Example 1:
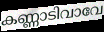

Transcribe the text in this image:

കണ്ണാടിവാവേ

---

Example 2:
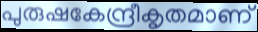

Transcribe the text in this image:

പുരുഷകേന്ദ്രീകൃതമാണ്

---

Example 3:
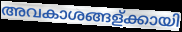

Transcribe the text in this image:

അവകാശങ്ങള്ക്കായി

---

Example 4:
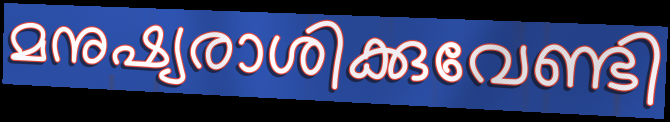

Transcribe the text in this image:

മനുഷ്യരാശിക്കുവേണ്ടി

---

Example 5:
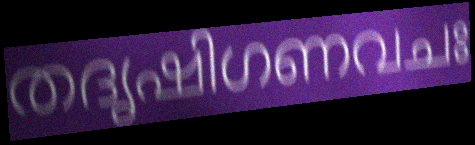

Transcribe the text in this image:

തദൃഷിഗണവചഃ